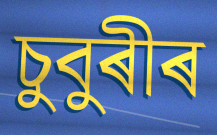
চুবুৰীৰ